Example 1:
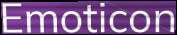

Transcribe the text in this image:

Emoticon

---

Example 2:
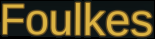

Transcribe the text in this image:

Foulkes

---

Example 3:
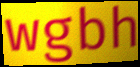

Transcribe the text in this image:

wgbh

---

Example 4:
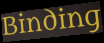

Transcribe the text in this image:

Binding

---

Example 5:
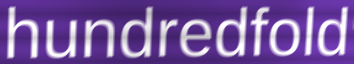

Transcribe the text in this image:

hundredfold